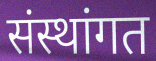
संस्थांगत